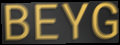
BEYG